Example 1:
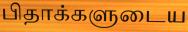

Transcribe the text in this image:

பிதாக்களுடைய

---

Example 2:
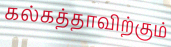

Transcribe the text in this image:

கல்கத்தாவிற்கும்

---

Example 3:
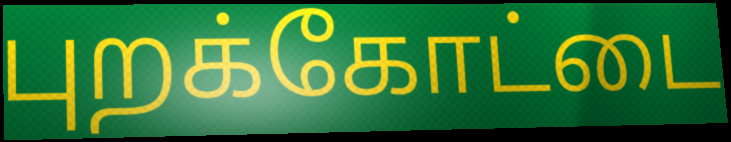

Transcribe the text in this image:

புறக்கோட்டை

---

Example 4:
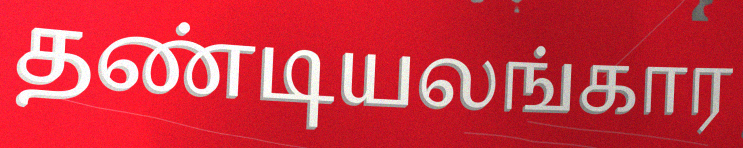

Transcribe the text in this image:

தண்டியலங்கார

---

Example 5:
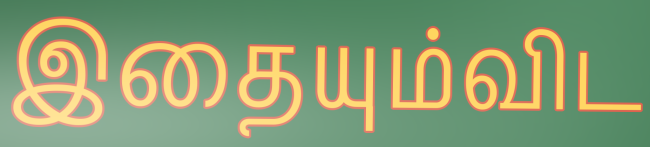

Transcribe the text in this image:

இதையும்விட